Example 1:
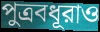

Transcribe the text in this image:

পুত্রবধূরাও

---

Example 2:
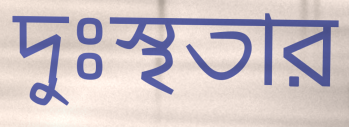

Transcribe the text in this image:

দুঃস্থতার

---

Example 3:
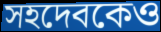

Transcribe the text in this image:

সহদেবকেও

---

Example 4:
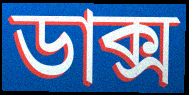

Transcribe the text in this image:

ডাক্স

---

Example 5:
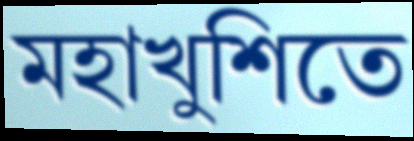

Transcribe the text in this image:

মহাখুশিতে